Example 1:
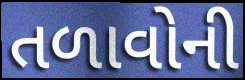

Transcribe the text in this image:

તળાવોની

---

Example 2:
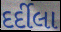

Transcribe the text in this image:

દર્દીલા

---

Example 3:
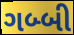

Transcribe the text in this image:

ગબ્બી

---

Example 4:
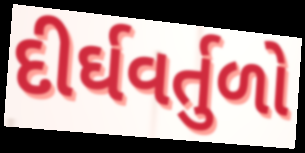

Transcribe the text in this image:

દીર્ઘવર્તુળો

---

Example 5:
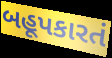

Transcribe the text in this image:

બહૂપકારતં